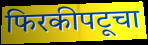
फिरकीपटूचा